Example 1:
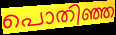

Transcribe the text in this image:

പൊതിഞ്ഞ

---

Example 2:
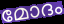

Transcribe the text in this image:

മോദം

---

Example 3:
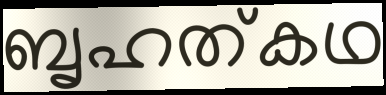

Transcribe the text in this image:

ബൃഹത്കഥ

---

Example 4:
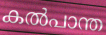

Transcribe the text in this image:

കൽപാന്ത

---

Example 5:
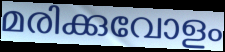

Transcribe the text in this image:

മരിക്കുവോളം